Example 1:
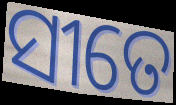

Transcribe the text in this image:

ସୀତେ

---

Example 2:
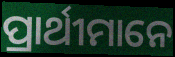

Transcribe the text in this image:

ପ୍ରାର୍ଥୀମାନେ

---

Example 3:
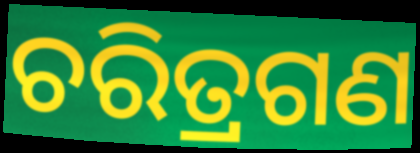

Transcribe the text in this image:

ଚରିତ୍ରଗଣ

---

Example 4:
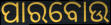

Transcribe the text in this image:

ପାରବୋଉ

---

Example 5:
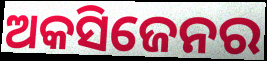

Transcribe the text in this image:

ଅକସିଜେନର